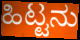
ಹಿಟ್ಟನು